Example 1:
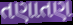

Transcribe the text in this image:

તણાતણ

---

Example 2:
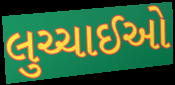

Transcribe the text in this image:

લુચ્ચાઈઓ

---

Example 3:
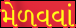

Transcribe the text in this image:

મેળવવાં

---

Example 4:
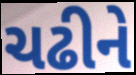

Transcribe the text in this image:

ચઢીને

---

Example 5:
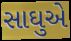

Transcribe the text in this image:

સાઘુએ